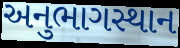
અનુભાગસ્થાન